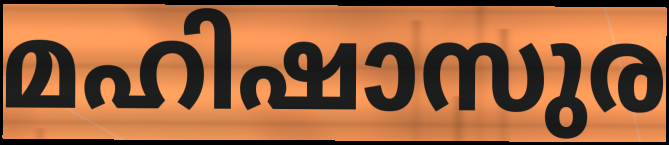
മഹിഷാസുര